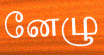
னேழு